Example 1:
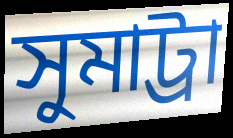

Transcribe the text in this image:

সুমাট্ৰা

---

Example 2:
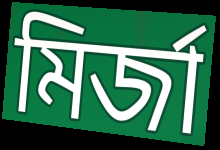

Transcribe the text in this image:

মিৰ্জা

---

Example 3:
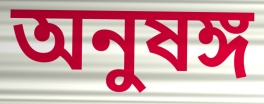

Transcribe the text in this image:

অনুষঙ্গ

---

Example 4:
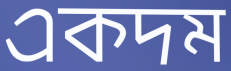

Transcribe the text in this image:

একদম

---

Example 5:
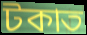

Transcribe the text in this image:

টকাত